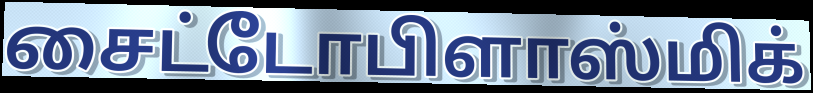
சைட்டோபிளாஸ்மிக்